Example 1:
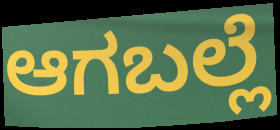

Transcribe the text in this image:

ಆಗಬಲ್ಲೆ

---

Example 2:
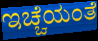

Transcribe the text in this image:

ಇಚ್ಚೆಯಂತೆ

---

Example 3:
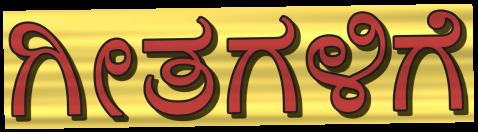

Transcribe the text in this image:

ಗೀತಗಳಿಗೆ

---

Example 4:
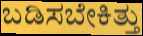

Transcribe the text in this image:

ಬಡಿಸಬೇಕಿತ್ತು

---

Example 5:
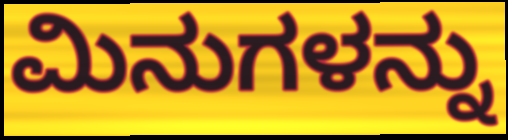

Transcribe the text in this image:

ಮಿನುಗಳನ್ನು